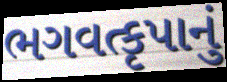
ભગવત્કૃપાનું